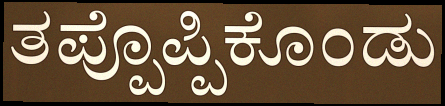
ತಪ್ಪೊಪ್ಪಿಕೊಂಡು